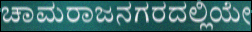
ಚಾಮರಾಜನಗರದಲ್ಲಿಯೇ